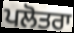
ਪਲੋਤਰਾ